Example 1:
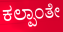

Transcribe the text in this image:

ಕಲ್ಪಾಂತೇ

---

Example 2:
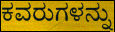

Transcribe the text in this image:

ಕವರುಗಳನ್ನು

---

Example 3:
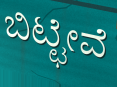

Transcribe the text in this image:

ಬಿಟ್ಟೇವೆ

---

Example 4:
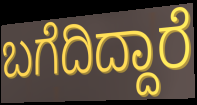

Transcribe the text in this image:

ಬಗೆದಿದ್ದಾರೆ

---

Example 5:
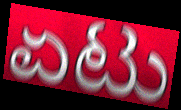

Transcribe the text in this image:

ಏಟು